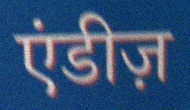
एंडीज़